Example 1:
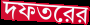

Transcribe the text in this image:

দফতরের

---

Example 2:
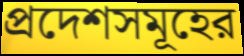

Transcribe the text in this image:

প্রদেশসমূহের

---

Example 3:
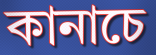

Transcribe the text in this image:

কানাচে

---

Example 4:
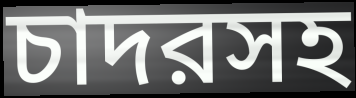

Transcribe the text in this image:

চাদরসহ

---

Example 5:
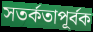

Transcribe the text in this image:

সতর্কতাপূর্বক